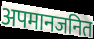
अपमानजनित